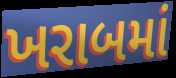
ખરાબમાં